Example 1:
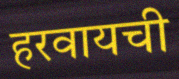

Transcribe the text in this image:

हरवायची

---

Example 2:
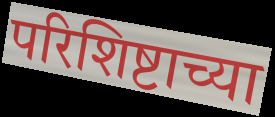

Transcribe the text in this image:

परिशिष्टाच्या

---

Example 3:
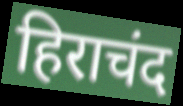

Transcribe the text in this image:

हिराचंद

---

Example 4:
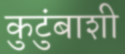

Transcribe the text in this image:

कुटुंबाशी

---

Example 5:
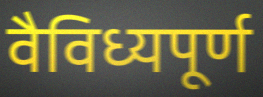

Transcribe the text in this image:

वैविध्यपूर्ण